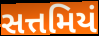
સત્તમિયં